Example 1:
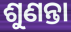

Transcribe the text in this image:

ଶୁଣନ୍ତା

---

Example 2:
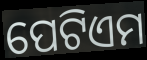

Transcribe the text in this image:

ପେଟିଏମ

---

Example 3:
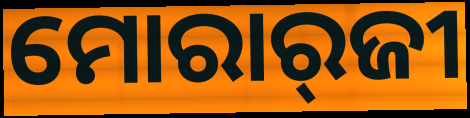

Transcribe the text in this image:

ମୋରାର୍‌ଜୀ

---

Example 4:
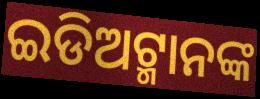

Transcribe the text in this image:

ଇଡିଅଟ୍ମାନଙ୍କ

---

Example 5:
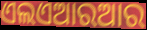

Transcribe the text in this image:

ଏଲଏଆରଆର